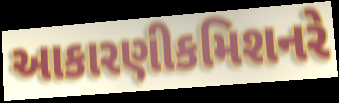
આકારણીકમિશનરે